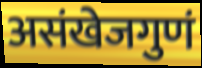
असंखेजगुणं